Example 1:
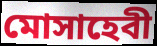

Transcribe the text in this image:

মোসাহেবী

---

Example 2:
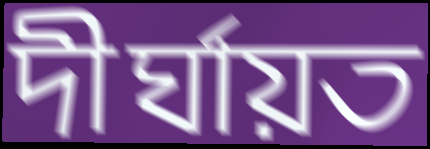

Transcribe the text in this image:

দীর্ঘায়ত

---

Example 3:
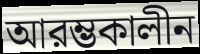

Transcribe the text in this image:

আরম্ভকালীন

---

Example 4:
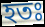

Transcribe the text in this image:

হতঃ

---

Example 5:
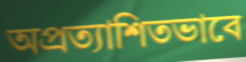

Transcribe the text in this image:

অপ্রত্যাশিতভাবে